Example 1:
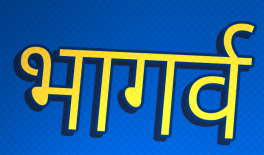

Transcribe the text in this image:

भागर्व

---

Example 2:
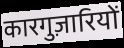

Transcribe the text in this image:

कारगुज़ारियों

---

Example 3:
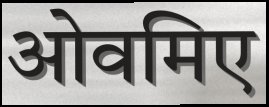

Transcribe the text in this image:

ओवमिए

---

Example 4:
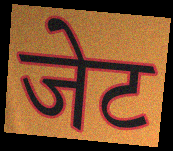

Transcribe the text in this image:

जेट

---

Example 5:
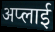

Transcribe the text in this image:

अप्लाई